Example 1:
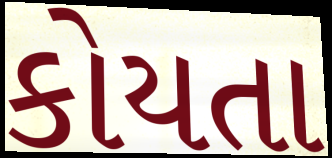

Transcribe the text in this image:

કોયતા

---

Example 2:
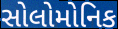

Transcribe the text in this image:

સોલોમોનિક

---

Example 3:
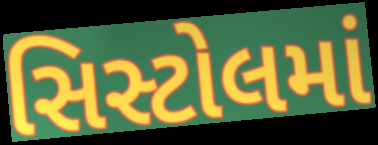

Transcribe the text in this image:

સિસ્ટોલમાં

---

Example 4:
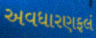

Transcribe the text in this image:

અવધારણફલં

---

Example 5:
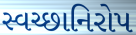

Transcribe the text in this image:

સ્વચ્છાનિરોપ